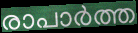
രാപാർത്ത